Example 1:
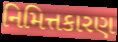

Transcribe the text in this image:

નિમિત્તકારણ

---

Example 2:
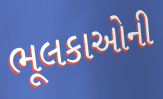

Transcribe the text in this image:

ભૂલકાઓની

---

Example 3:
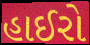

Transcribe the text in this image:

હાઈરો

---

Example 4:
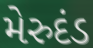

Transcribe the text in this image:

મેરુદંડ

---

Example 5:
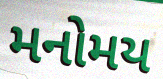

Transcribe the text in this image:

મનોમય